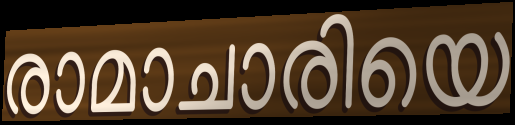
രാമാചാരിയെ